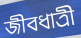
জীবধাত্রী